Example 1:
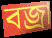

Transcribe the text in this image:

বজ্রা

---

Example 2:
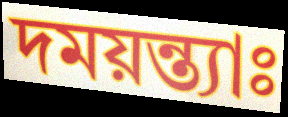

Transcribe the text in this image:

দময়ন্ত্যাঃ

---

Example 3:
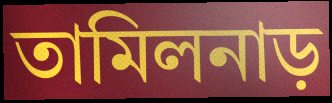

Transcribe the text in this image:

তামিলনাড়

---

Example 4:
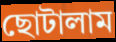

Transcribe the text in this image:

ছোটালাম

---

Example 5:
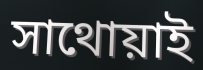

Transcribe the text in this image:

সাথোয়াই